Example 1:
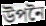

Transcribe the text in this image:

উপনৈ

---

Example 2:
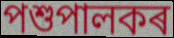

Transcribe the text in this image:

পশুপালকৰ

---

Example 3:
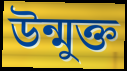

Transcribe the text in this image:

উন্মুক্ত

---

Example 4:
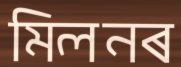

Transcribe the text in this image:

মিলনৰ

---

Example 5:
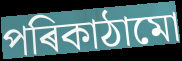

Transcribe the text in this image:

পৰিকাঠামো